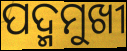
ପଦ୍ମମୁଖୀ